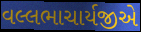
વલ્લભાચાર્યજીએ